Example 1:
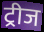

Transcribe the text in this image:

ट्रीज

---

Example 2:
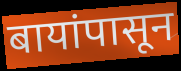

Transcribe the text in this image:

बायांपासून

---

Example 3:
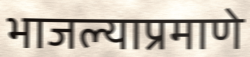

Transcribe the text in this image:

भाजल्याप्रमाणे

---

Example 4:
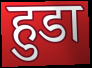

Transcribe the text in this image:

हुडा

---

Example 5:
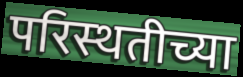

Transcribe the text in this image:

परिस्थतीच्या